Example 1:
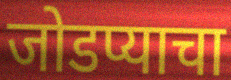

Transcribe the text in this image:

जोडप्याचा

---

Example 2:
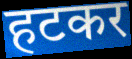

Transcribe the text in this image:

हटकर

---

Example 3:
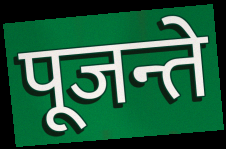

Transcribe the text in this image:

पूजन्ते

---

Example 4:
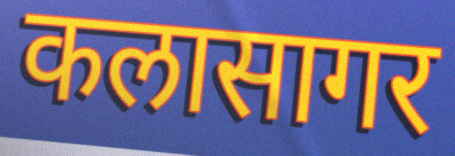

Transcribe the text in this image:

कलासागर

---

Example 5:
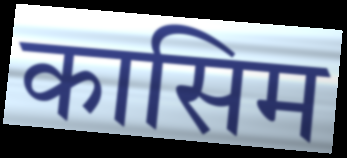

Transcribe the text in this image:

कासिम